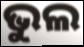
ଭୁଲ